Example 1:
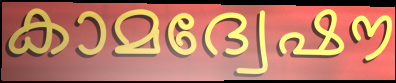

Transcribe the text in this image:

കാമദ്വേഷൗ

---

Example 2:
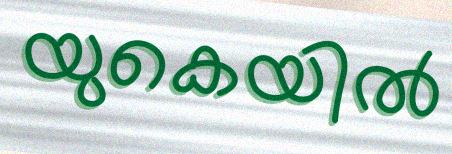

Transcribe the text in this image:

യുകെയിൽ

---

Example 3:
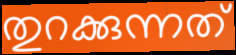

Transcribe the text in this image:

തുറക്കുന്നത്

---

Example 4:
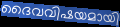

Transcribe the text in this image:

ദൈവവിഷയമായി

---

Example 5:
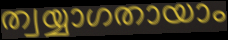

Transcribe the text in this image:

ത്വയ്യാഗതായാം